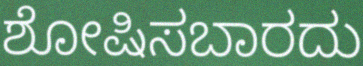
ಶೋಷಿಸಬಾರದು